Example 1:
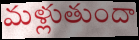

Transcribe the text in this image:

మళ్లుతుందా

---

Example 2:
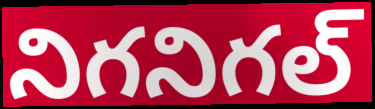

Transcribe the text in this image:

నిగనిగల్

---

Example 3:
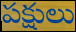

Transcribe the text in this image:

పక్షులు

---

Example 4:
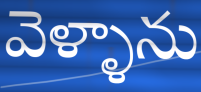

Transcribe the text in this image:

వెళ్ళాను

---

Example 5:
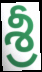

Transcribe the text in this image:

శ్రీ